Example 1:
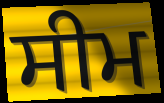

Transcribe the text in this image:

ਸੀਮ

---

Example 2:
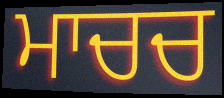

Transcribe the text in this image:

ਮਾਚਚ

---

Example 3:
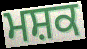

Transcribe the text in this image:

ਮਸ਼ਕ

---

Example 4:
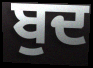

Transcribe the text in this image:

ਬੁਦ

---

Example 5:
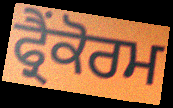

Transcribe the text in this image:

ਫ੍ਰੈਂਕੋਰਮ